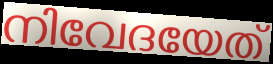
നിവേദയേത്